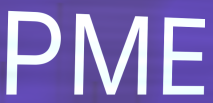
PME